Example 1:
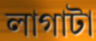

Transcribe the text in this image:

লাগাটা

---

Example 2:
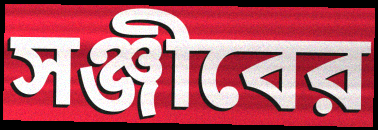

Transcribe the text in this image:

সঞ্জীবের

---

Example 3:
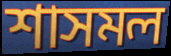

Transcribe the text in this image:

শাসমল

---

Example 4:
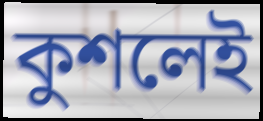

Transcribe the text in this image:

কুশলেই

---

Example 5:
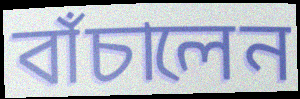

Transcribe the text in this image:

বাঁচালেন